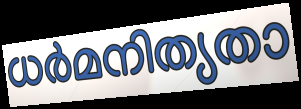
ധർമനിത്യതാ